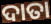
ଦାତା